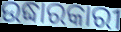
ଉଦ୍ଧାରକାରୀ